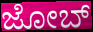
ಜೋಬ್